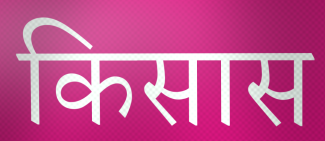
किसास